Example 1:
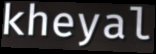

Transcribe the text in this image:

kheyal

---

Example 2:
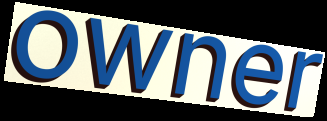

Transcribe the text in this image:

owner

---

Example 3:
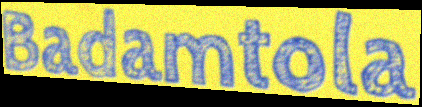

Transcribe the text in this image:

Badamtola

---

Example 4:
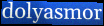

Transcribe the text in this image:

dolyasmor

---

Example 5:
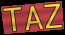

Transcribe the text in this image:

TAZ